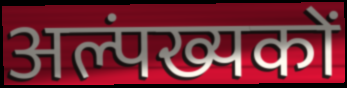
अल्पंख्यकों